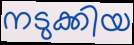
നടുക്കിയ